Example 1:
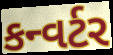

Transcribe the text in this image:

કન્વર્ટર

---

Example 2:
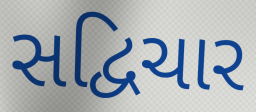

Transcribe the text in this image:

સદ્વિચાર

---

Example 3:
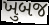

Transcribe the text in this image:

ખુબજ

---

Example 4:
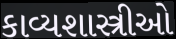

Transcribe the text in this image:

કાવ્યશાસ્ત્રીઓ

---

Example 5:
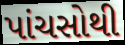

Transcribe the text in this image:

પાંચસોથી